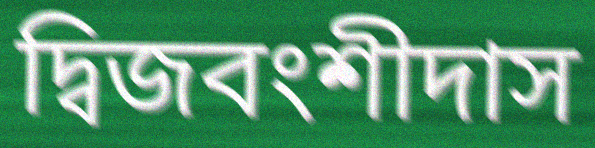
দ্বিজবংশীদাস